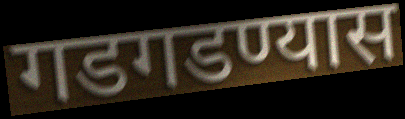
गडगडण्यास